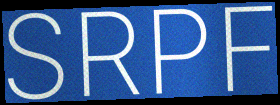
SRPF